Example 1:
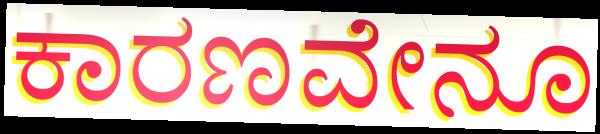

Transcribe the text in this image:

ಕಾರಣವೇನೂ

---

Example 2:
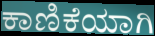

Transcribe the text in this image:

ಕಾಣಿಕೆಯಾಗಿ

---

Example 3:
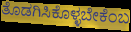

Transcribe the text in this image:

ತೊಡಗಿಸಿಕೊಳ್ಳಬೇಕೆಂಬ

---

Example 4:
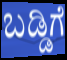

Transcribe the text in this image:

ಬಡ್ಡಿಗೆ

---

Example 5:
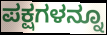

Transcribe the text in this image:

ಪಕ್ಷಗಳನ್ನೂ